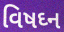
વિષઘ્ન